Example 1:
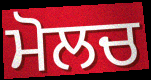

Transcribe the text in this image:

ਮੋਲਚ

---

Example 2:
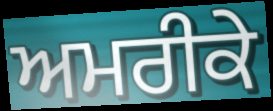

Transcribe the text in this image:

ਅਮਰੀਕੇ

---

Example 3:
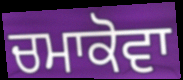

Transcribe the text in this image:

ਚਮਾਕੋਵਾ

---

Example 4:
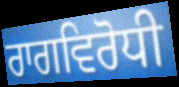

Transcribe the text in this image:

ਰਾਗਵਿਰੋਧੀ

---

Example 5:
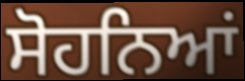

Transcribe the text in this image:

ਸੋਹਨਿਆਂ